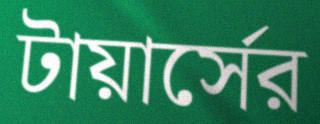
টায়ার্সের